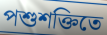
পশুশক্তিতে